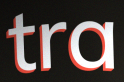
tra